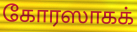
கோரஸாகக்